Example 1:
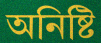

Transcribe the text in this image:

অনিষ্টি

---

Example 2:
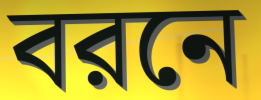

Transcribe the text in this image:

বরনে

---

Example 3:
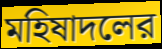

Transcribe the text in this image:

মহিষাদলের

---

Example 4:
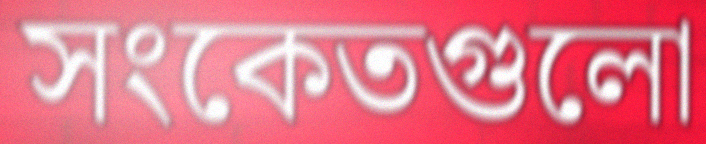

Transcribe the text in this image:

সংকেতগুলো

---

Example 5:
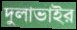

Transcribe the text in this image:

দুলাভাইর